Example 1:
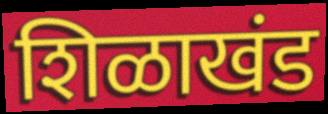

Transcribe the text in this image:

शिळाखंड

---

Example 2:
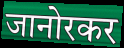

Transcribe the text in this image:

जानोरकर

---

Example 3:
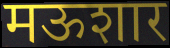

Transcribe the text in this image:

मऊशार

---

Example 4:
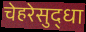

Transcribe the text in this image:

चेहरेसुद्धा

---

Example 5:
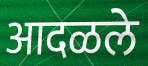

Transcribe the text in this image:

आदळले